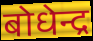
बोधेन्द्र